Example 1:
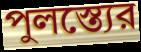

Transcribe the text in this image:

পুলস্ত্যের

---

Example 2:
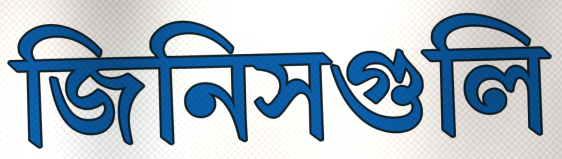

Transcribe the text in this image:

জিনিসগুলি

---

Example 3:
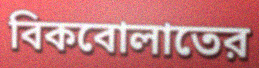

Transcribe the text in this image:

বিকবোলাতের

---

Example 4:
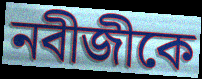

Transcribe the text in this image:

নবীজীকে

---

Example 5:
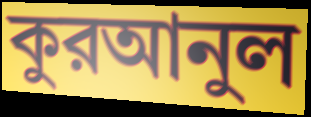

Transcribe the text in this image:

কুরআনুল